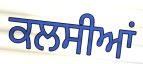
ਕਲਸੀਆਂ